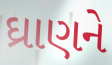
ઘ્રાણને